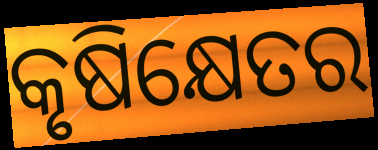
କୃଷିକ୍ଷେତର